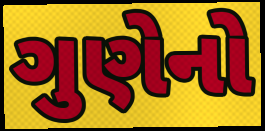
ગુણેનો